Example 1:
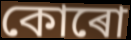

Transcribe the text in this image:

কোৰো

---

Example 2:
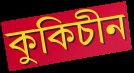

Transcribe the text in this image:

কুকিচীন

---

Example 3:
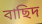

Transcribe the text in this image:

বাছিদ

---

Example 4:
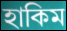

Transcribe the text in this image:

হাকিম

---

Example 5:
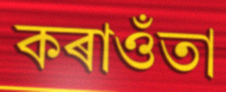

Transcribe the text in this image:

কৰাওঁতা